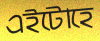
এইটোহে